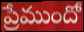
ప్రేముందో